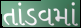
તાંડવમાં